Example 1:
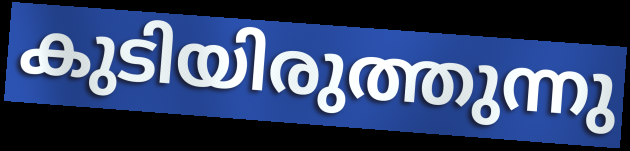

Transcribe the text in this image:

കുടിയിരുത്തുന്നു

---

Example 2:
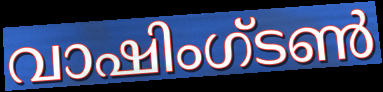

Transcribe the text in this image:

വാഷിംഗ്ടൺ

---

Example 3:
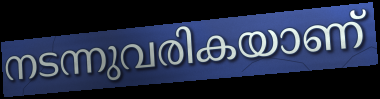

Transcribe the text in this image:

നടന്നുവരികയാണ്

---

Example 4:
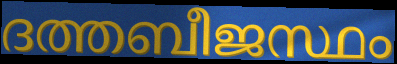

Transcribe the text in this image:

ദത്തബീജസ്ഥം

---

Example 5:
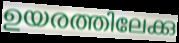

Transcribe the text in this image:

ഉയരത്തിലേക്കു